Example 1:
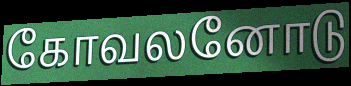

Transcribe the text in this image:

கோவலனோடு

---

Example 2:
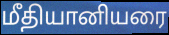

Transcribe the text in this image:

மீதியானியரை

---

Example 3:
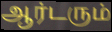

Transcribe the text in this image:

ஆர்டரும்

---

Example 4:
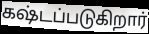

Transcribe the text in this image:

கஷ்டப்படுகிறார்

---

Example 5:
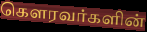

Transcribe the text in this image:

கௌரவர்களின்